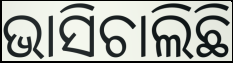
ଭାସିଚାଲିଛି